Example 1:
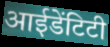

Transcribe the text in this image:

आईडेंटिटी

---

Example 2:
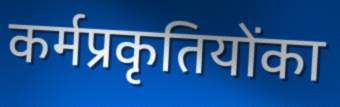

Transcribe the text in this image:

कर्मप्रकृतियोंका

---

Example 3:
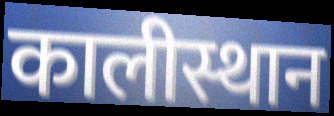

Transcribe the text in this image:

कालीस्थान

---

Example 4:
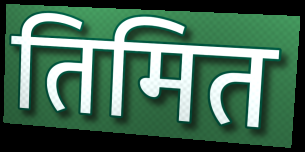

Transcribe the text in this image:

तिमित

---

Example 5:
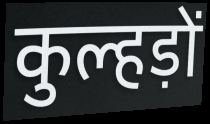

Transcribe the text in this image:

कुल्हड़ों